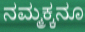
ನಮ್ಮಕ್ಕನೂ